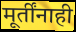
मूर्तींनाही